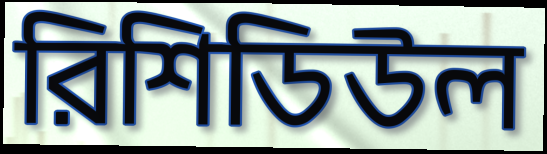
রিশিডিউল